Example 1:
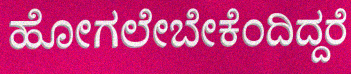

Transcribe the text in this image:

ಹೋಗಲೇಬೇಕೆಂದಿದ್ದರೆ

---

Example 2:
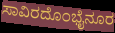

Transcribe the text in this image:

ಸಾವಿರದೊಂಭೈನೂರ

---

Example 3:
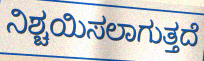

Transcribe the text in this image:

ನಿಶ್ಚಯಿಸಲಾಗುತ್ತದೆ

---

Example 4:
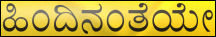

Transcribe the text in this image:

ಹಿಂದಿನಂತೆಯೇ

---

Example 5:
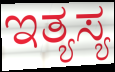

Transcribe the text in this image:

ಇತ್ಯಸ್ಯ